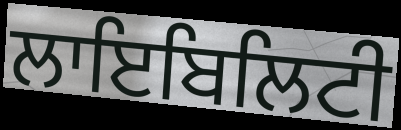
ਲਾਇਬਿਲਿਟੀ